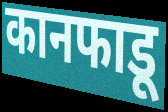
कानफाडू